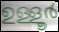
ഉള്ളൂർ